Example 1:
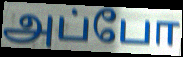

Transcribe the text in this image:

அப்போ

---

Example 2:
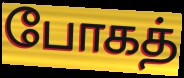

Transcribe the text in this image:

போகத்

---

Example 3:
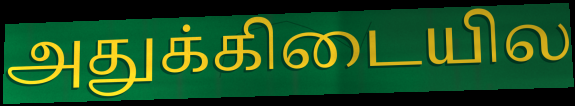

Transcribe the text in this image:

அதுக்கிடையில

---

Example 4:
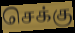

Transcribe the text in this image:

செக்கு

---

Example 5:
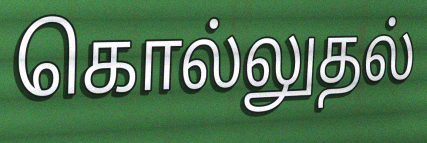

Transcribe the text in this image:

கொல்லுதல்